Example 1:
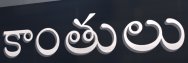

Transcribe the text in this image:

కాంతులు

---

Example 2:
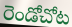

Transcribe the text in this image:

రెండోచోట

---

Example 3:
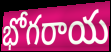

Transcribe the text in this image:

భోగరాయ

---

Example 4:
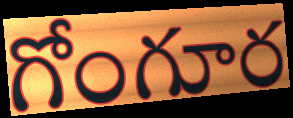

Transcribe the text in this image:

గోంగూర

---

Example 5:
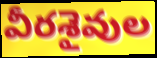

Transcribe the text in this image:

వీరశైవుల